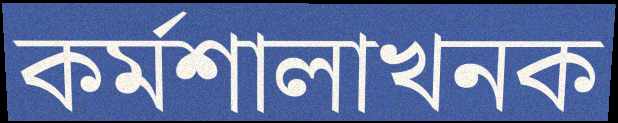
কৰ্মশালাখনক